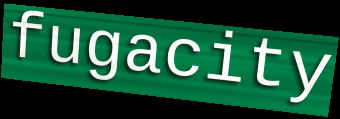
fugacity